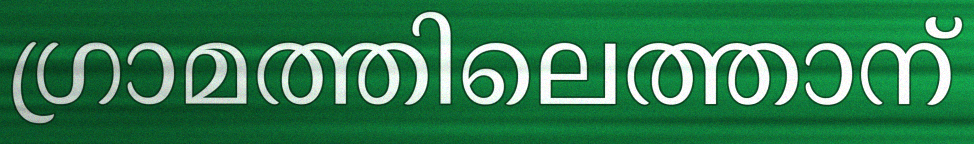
ഗ്രാമത്തിലെത്താന്